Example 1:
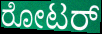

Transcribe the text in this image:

ರೋಟರ್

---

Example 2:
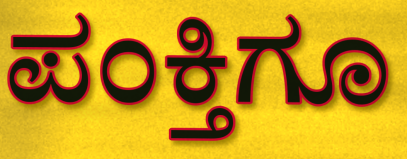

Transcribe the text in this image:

ಪಂಕ್ತಿಗೂ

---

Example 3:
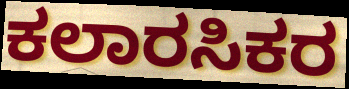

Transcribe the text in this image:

ಕಲಾರಸಿಕರ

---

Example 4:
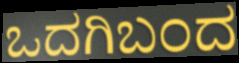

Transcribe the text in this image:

ಒದಗಿಬಂದ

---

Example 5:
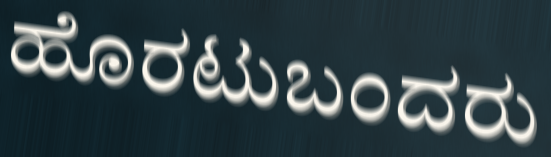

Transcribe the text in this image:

ಹೊರಟುಬಂದರು